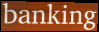
banking